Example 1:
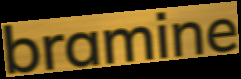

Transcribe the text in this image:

bramine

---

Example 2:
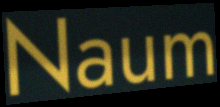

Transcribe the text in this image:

Naum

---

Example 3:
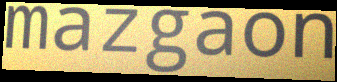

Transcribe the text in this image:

mazgaon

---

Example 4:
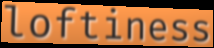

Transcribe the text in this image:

loftiness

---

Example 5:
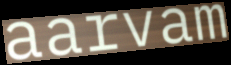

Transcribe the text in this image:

aarvam